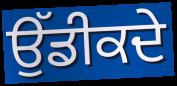
ਉੱਡੀਕਦੇ